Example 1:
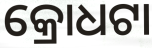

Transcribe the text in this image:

କ୍ରୋଧଟା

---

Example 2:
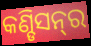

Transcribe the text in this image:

କଣ୍ଡିସନ୍‌ର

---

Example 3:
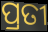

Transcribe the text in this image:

ପ୍ରତୀ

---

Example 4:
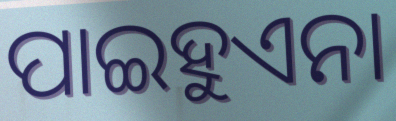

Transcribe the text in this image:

ପାଇହୁଏନା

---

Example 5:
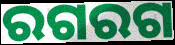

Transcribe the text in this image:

ରଗରଗ